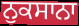
ਨੁਕਸਾਨਾ